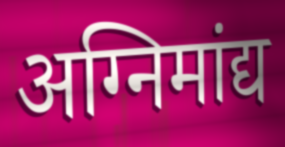
अग्निमांद्य